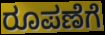
ರೂಪಣೆಗೆ